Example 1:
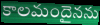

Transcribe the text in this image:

కాలమందైనను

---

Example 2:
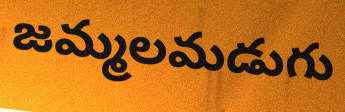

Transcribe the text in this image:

జమ్మలమడుగు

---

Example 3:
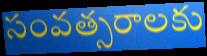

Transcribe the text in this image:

సంవత్సరాలకు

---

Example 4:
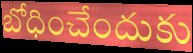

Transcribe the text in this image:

బోధించేందుకు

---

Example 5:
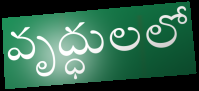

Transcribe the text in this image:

వృద్ధులలో